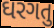
ઘરગતુ